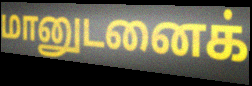
மானுடனைக்